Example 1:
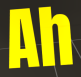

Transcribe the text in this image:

Ah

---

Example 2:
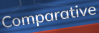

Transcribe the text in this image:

Comparative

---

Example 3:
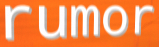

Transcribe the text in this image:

rumor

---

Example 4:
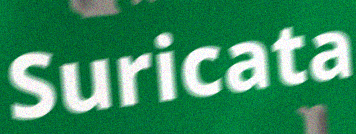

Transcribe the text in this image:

Suricata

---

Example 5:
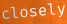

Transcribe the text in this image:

closely